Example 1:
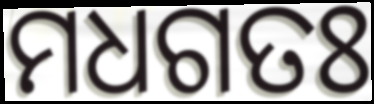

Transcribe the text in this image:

ମଧଗତଃ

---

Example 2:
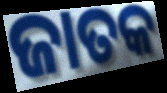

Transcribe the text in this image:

ଜାତକ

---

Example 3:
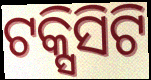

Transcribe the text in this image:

ଟକ୍ସିସିଟି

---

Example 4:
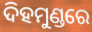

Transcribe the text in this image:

ଦିହମୁଣ୍ଡରେ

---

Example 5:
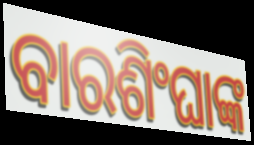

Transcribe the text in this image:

ବାରଶିଂଘାଙ୍କ